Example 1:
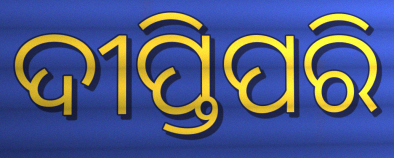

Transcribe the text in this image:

ଦୀପ୍ତିପରି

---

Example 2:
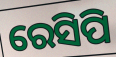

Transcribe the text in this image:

ରେସିପି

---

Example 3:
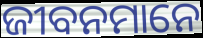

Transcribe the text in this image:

ଜୀବନମାନେ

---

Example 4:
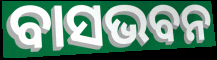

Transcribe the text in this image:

ବାସଭବନ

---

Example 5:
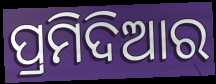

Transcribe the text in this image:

ପ୍ରମିଦିଆର